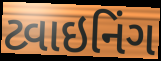
ટ્વાઇનિંગ